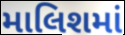
માલિશમાં